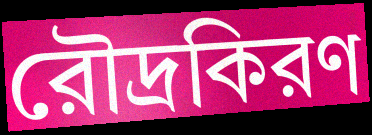
রৌদ্রকিরণ